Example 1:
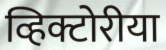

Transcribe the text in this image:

व्हिक्टोरीया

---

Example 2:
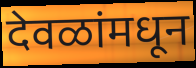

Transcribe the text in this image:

देवळांमधून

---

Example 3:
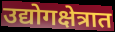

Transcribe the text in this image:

उद्योगक्षेत्रात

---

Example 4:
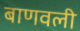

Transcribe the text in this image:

बाणवली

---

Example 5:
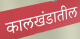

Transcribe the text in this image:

कालखंडातील